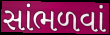
સાંભળવાં